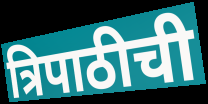
त्रिपाठीची